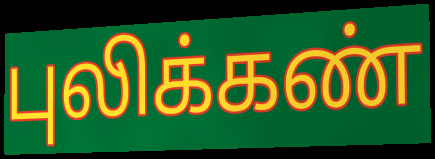
புலிக்கண்